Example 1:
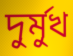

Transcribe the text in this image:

দুর্মুখ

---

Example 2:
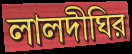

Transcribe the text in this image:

লালদীঘির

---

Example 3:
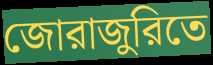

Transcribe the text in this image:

জোরাজুরিতে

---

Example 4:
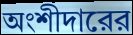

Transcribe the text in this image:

অংশীদারের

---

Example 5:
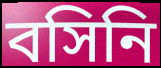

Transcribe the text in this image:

বসিনি